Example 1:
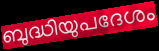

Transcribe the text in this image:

ബുദ്ധിയുപദേശം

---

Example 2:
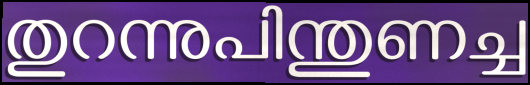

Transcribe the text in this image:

തുറന്നുപിന്തുണച്ച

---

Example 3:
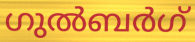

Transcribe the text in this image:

ഗുൽബർഗ്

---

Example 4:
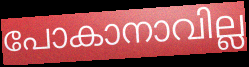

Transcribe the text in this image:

പോകാനാവില്ല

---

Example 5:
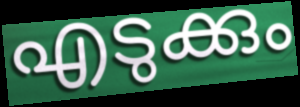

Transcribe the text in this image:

എടുക്കും